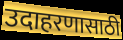
उदाहरणासाठी